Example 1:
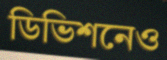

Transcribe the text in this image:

ডিভিশনেও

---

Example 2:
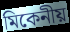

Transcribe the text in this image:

মিকেনীয়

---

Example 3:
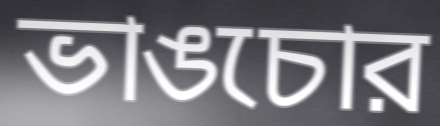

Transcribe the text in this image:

ভাঙচোর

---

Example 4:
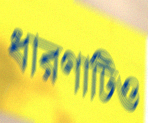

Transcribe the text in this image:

ধারণাটিও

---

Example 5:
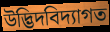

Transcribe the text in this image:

উদ্ভিদবিদ্যাগত